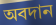
অবদান